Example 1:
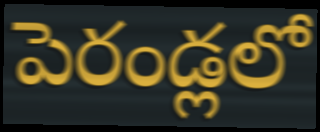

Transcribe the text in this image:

పెరండ్లలో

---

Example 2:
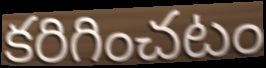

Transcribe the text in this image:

కరిగించటం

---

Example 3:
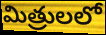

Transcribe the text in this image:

మిత్రులలో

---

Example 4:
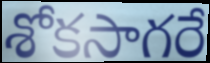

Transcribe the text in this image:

శోకసాగరే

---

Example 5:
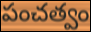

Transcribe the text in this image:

పంచత్వం